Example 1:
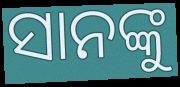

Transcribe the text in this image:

ସାନଙ୍କୁ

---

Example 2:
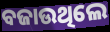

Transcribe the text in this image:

ବଜାଉଥିଲେ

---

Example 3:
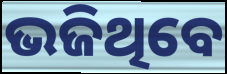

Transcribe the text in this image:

ଭଜିଥିବେ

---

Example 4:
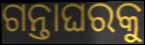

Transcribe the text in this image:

ଗନ୍ତାଘରକୁ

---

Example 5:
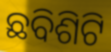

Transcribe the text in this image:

ଛବିଶିଟି